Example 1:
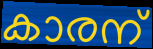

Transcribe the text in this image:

കാരന്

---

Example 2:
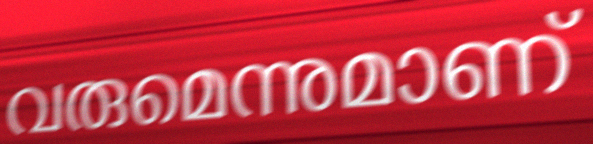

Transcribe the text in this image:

വരുമെന്നുമാണ്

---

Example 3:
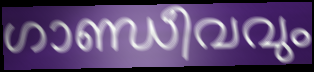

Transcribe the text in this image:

ഗാണ്ഡീവവും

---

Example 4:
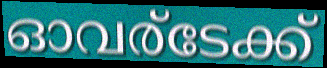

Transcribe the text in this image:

ഓവര്ടേക്ക്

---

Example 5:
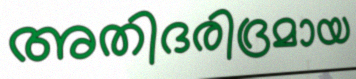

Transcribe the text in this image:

അതിദരിദ്രമായ